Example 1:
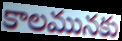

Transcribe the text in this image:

కాలమునకు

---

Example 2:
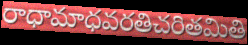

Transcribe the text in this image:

రాధామాధవరతిచరితమితి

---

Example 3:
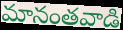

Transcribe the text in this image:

మానంతవాడి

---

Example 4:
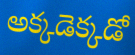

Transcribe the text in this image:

అక్కడెక్కడో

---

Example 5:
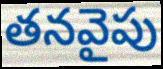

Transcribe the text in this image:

తనవైపు